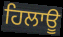
ਹਿਲਾਊ